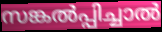
സങ്കൽപ്പിച്ചാൽ